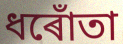
ধৰোঁতা